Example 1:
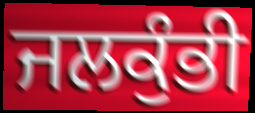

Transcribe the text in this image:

ਜਲਕੁੰਭੀ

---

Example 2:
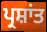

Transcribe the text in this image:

ਪ੍ਰਸ਼ਾਂਤ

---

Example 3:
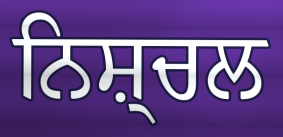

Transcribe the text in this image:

ਨਿਸ਼੍ਚਲ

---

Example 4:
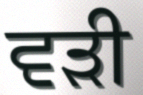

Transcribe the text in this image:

ਵੜੀ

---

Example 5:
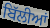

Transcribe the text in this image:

ਬਿੱਲੀਆਂ